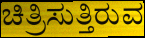
ಚಿತ್ರಿಸುತ್ತಿರುವ